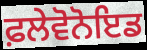
ਫ਼ਲੇਵੋਨੋਇਡ